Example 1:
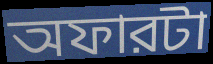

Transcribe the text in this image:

অফারটা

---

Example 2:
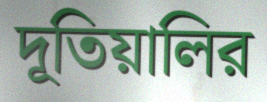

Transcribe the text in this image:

দূতিয়ালির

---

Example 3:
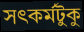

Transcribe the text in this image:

সৎকর্মটুকু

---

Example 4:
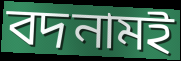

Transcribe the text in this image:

বদনামই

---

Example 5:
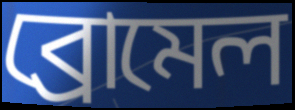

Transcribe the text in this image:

ব্রোমেল